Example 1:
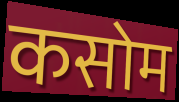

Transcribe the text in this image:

कसोम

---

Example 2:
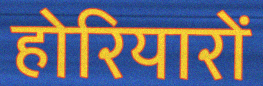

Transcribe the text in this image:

होरियारों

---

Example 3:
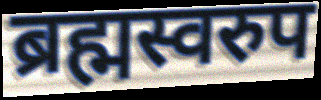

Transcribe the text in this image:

ब्रह्मस्वरुप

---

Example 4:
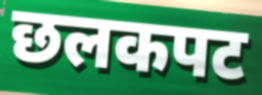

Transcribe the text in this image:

छलकपट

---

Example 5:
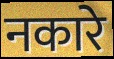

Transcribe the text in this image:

नकारे